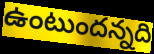
ఉంటుందన్నది